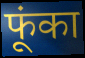
फूंका